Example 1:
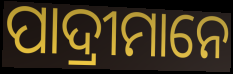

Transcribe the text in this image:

ପାଦ୍ରୀମାନେ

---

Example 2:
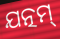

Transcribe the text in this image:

ଯତ୍ନମ୍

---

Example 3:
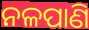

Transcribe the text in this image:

ନଳପାଣି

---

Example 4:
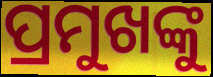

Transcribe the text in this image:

ପ୍ରମୁଖଙ୍କୁ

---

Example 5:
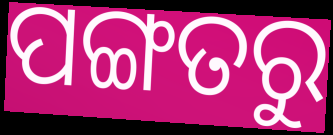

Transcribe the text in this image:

ପଙ୍ଗତରୁ